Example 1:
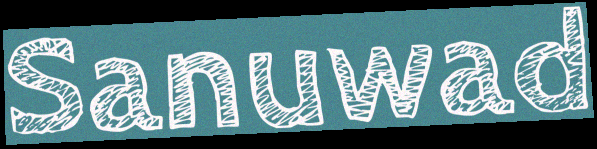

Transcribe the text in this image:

Sanuwad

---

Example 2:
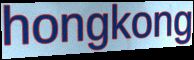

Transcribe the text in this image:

hongkong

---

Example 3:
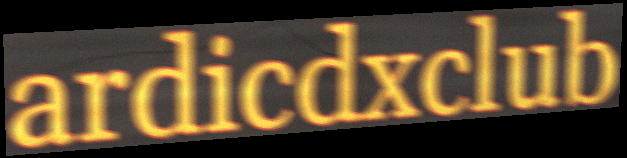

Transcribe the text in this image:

ardicdxclub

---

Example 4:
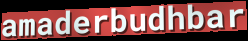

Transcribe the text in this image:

amaderbudhbar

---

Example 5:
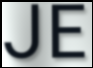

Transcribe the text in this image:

JE